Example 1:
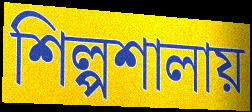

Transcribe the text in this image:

শিল্পশালায়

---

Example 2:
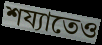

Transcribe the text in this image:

শয্যাতেও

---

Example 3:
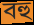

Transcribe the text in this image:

বহু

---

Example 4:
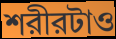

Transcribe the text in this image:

শরীরটাও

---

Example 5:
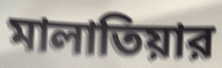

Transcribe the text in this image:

মালাতিয়ার